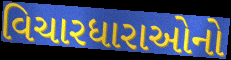
વિચારધારાઓનો